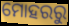
ମୋହରରୁ